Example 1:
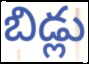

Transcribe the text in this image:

బిడ్లు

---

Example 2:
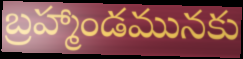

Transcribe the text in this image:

బ్రహ్మాండమునకు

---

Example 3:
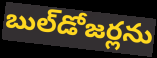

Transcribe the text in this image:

బుల్‌డోజర్లను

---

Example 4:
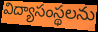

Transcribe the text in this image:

విద్యాసంస్థలను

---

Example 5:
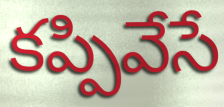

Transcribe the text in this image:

కప్పివేసే